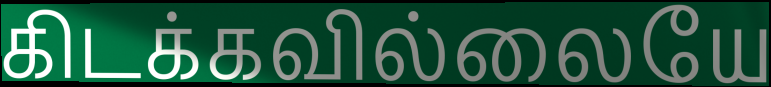
கிடக்கவில்லையே